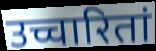
उच्चारितां